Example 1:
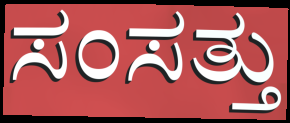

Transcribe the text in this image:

ಸಂಸತ್ತು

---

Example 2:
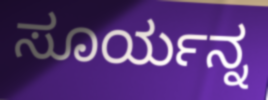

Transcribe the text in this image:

ಸೂರ್ಯನ್ನ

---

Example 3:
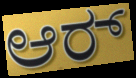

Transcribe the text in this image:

ಆರ್‍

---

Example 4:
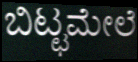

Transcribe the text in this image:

ಬಿಟ್ಟಮೇಲೆ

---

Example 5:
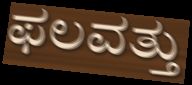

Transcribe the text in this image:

ಫಲವತ್ತು